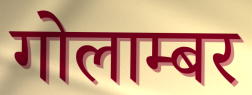
गोलाम्बर